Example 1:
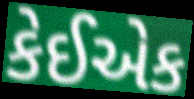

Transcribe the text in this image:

કેઈએક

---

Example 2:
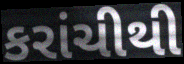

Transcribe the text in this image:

કરાંચીથી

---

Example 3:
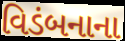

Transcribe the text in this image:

વિડંબનાના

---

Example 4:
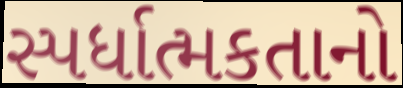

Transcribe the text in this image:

સ્પર્ધાત્મકતાનો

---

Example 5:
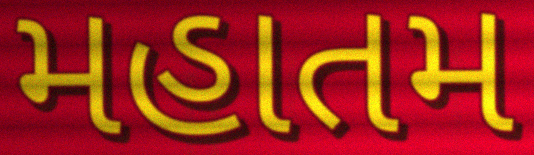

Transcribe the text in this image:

મહાતમ